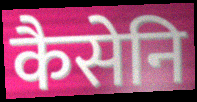
कैसेनि